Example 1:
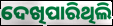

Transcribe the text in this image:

ଦେଖିପାରିଥିଲି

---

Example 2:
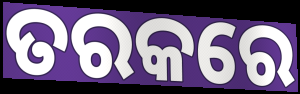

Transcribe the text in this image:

ତରକରେ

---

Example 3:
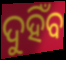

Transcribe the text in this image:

ଦୁହିଁବ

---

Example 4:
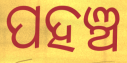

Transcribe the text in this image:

ପହଞ୍ଚ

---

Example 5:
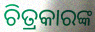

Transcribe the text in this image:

ଚିତ୍ରକାରଙ୍କ